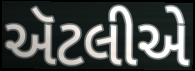
ઍટલીએ